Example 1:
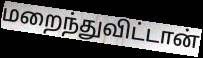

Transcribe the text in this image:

மறைந்துவிட்டான்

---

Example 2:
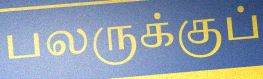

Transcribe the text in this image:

பலருக்குப்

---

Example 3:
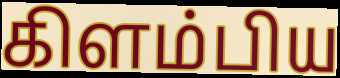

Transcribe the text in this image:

கிளம்பிய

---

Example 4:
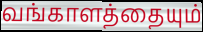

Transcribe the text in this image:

வங்காளத்தையும்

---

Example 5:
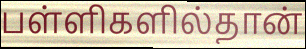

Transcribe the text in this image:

பள்ளிகளில்தான்